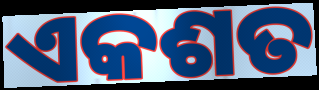
ଏକଶତ